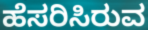
ಹೆಸರಿಸಿರುವ